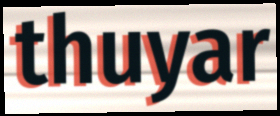
thuyar